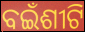
ବଇଁଶୀଟି